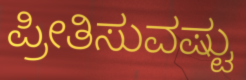
ಪ್ರೀತಿಸುವಷ್ಟು